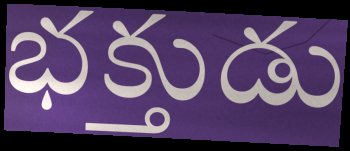
భక్తుడు